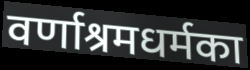
वर्णाश्रमधर्मका